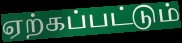
ஏற்கப்பட்டும்